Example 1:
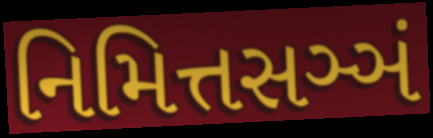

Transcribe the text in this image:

નિમિત્તસઞ્ઞં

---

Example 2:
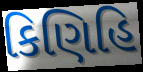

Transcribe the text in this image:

કિણિહિ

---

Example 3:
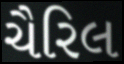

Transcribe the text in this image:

ચૈરિલ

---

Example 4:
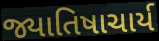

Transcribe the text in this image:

જ્યાતિષાચાર્ય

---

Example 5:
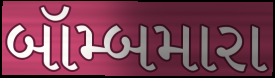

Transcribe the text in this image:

બૉમ્બમારા